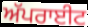
ਅੱਪਰਾਈਟ